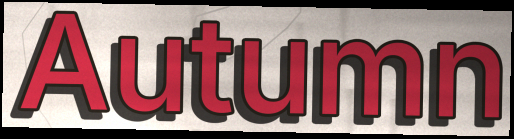
Autumn